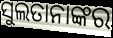
ସୁଲତାନାଙ୍କର